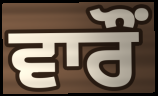
ਵਾਰੌਂ